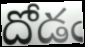
దోడఁ